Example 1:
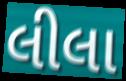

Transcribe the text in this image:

લીલા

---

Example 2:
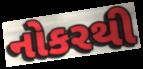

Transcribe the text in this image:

નોકરથી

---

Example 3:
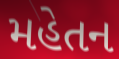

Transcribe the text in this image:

મહેતન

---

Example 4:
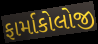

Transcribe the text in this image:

ફાર્માકોલોજી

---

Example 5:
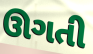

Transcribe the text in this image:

ઊગતી